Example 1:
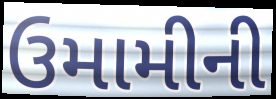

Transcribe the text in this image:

ઉમામીની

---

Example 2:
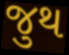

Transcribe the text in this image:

જુથ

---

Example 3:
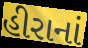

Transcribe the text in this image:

હીરાનાં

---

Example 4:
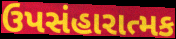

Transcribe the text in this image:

ઉપસંહારાત્મક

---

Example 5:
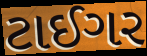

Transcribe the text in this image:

ટાઈગર